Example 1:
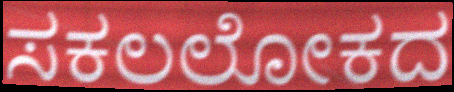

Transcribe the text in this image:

ಸಕಲಲೋಕದ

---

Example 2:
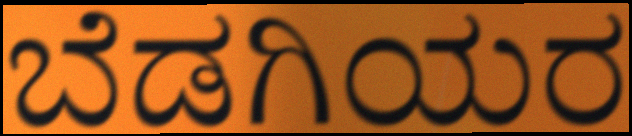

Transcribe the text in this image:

ಬೆಡಗಿಯರ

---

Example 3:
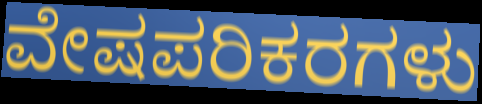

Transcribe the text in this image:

ವೇಷಪರಿಕರಗಳು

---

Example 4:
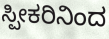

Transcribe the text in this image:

ಸ್ಪೀಕರಿನಿಂದ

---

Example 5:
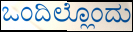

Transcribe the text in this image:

ಒಂದಿಲ್ಲೊಂದು